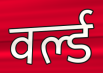
वर्ल्‍ड